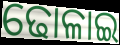
ଢୋଳାଇ